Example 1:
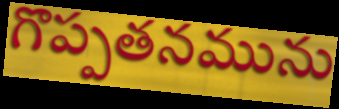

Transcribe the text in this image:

గొప్పతనమును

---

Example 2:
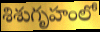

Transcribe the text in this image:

శిశుగృహంలో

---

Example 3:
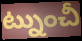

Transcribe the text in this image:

ట్నుంచీ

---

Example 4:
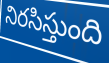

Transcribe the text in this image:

నిరసిస్తుంది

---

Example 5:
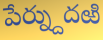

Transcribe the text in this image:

పేర్న్దుదఱి